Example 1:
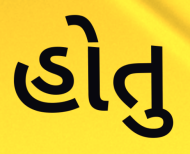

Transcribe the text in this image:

હોતુ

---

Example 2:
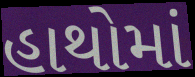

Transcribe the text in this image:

હાથોમાં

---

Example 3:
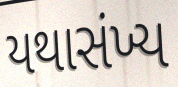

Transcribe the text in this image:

યથાસંખ્ય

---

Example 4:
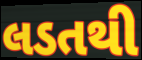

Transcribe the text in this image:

લડતથી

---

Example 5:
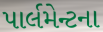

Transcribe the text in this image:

પાર્લમેન્ટના